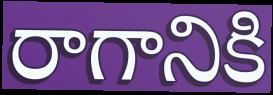
రాగానికి